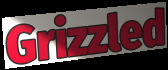
Grizzled